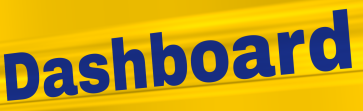
Dashboard